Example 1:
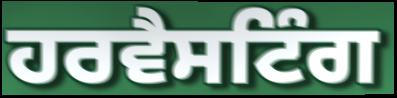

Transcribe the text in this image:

ਹਰਵੈਸਟਿੰਗ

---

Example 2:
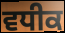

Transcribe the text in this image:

ਵਧੀਕ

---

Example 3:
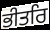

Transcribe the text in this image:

ਭੀਤਰਿ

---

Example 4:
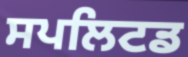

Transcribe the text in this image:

ਸਪਲਿਟਡ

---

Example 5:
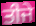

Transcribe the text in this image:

ਤੀਜੇ